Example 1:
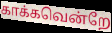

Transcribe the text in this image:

காக்கவென்றே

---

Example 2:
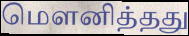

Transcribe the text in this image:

மௌனித்தது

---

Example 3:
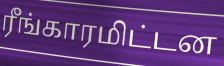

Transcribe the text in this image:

ரீங்காரமிட்டன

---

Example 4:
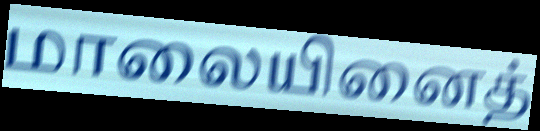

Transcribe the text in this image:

மாலையினைத்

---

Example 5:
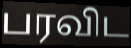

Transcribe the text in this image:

பரவிட